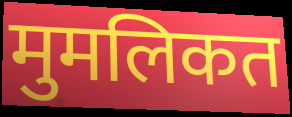
मुमलिकत